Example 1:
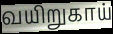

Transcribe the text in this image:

வயிறுகாய்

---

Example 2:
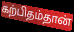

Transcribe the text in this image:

கற்பிதம்தான்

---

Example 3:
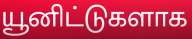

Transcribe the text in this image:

யூனிட்டுகளாக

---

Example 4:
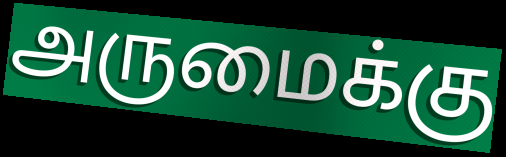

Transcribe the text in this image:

அருமைக்கு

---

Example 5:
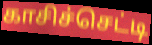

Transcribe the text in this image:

காசிச்செட்டி